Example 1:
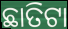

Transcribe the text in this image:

ଛାତିଟା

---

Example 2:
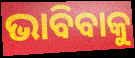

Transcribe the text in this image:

ଭାବିବାକୁ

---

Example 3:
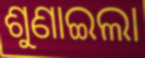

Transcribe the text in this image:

ଶୁଣାଇଲା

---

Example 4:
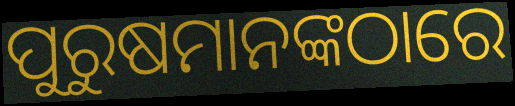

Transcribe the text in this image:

ପୁରୁଷମାନଙ୍କଠାରେ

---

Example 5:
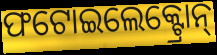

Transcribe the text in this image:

ଫଟୋଇଲେକ୍ଟ୍ରୋନ୍